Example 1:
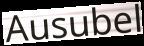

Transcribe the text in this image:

Ausubel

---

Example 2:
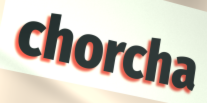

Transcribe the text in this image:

chorcha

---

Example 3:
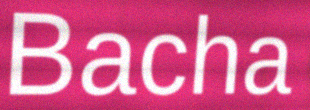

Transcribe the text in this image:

Bacha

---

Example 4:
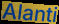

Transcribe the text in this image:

Alanti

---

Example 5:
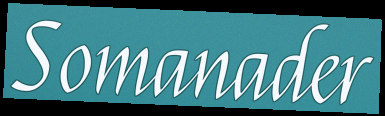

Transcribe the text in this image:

Somanader